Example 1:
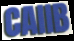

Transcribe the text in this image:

CAIIB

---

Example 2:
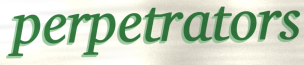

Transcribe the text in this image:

perpetrators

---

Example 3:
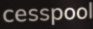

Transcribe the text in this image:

cesspool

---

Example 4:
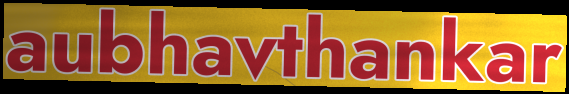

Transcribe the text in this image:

aubhavthankar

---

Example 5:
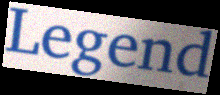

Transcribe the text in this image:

Legend